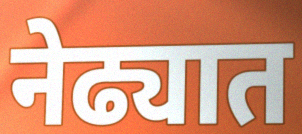
नेढ्यात